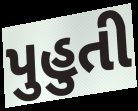
પુહુતી